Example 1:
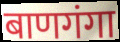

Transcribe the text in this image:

बाणगंगा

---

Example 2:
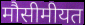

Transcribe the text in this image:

मौसीमीयत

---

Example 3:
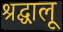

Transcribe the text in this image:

श्रद्घालू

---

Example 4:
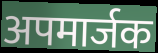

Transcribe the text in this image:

अपमार्जक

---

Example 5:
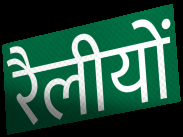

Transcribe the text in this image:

रैलीयों